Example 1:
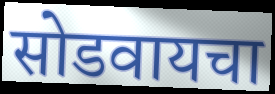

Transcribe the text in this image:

सोडवायचा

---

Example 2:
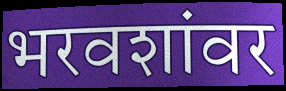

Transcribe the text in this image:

भरवशांवर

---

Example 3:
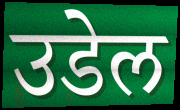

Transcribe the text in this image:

उडेल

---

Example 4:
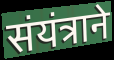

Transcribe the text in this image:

संयंत्राने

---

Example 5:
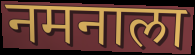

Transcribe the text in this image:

नमनाला